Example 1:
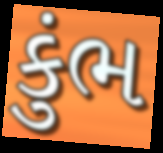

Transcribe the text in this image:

કુંભ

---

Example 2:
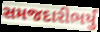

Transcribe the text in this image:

સમજદારીભર્યું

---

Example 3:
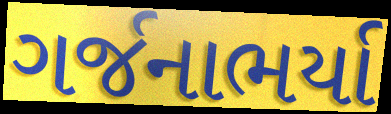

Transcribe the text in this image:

ગર્જનાભર્યા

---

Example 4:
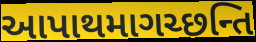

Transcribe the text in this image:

આપાથમાગચ્છન્તિ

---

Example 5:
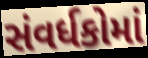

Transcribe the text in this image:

સંવર્ધકોમાં